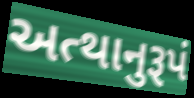
અત્થાનુરૂપં